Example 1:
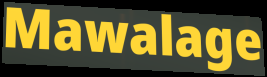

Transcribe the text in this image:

Mawalage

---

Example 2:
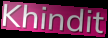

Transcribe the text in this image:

Khindit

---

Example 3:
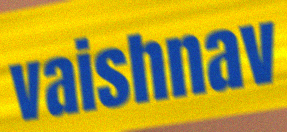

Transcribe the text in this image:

vaishnav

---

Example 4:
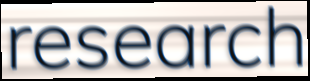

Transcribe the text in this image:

research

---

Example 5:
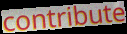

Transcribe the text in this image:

contribute